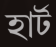
হার্ট